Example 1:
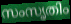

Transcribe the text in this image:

സംസൃതിം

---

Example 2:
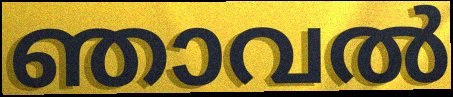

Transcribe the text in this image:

ഞാവൽ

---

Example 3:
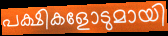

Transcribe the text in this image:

പക്ഷികളോടുമായി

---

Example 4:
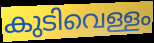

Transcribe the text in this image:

കുടിവെള്ളം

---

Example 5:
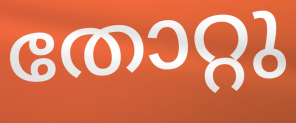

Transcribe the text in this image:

തോറ്റു